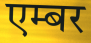
एम्बर